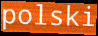
polski